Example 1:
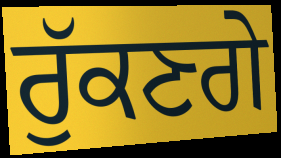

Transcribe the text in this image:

ਰੁੱਕਣਗੇ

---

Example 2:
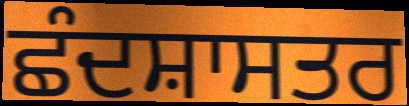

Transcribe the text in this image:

ਛੰਦਸ਼ਾਸਤਰ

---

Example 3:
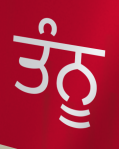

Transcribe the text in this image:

ਤੰਨੂ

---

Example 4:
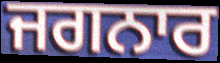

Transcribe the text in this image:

ਜਗਨਾਰ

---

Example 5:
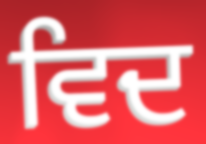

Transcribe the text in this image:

ਵਿਦ